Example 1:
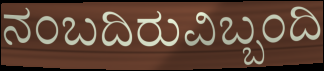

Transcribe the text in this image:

ನಂಬದಿರುವಿಬ್ಬಂದಿ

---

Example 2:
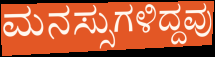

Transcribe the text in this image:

ಮನಸ್ಸುಗಳಿದ್ದವು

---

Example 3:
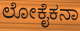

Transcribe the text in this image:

ಲೋಕೈಕನಾ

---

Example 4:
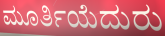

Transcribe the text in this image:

ಮೂರ್ತಿಯೆದುರು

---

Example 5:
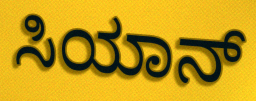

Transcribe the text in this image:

ಸಿಯಾನ್